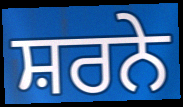
ਸ਼ਰਨੇ